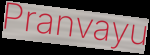
Pranvayu